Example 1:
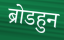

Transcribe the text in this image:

ब्रोडहुन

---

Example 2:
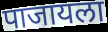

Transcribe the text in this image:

पाजायला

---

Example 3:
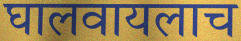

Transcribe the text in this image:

घालवायलाच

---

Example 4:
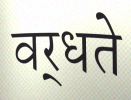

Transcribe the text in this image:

वर्धते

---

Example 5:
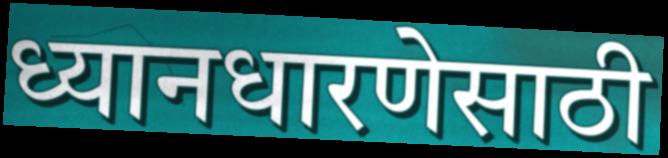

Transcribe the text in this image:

ध्यानधारणेसाठी